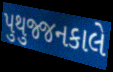
પુથુજ્જનકાલે